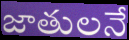
జాతులనే